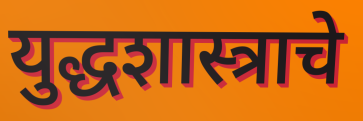
युद्धशास्त्राचे